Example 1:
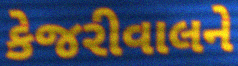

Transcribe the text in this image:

કેજરીવાલને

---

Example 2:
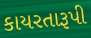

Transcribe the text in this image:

કાયરતારૂપી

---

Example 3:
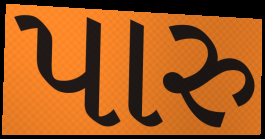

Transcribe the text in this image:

પારુ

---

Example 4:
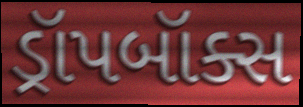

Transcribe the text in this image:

ડ્રૉપબૉક્સ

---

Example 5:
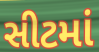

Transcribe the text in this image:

સીટમાં